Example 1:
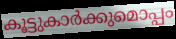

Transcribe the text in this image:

കൂട്ടുകാർക്കുമൊപ്പം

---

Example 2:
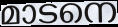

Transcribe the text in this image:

മാടനെ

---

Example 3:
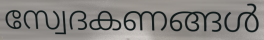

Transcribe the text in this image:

സ്വേദകണങ്ങൾ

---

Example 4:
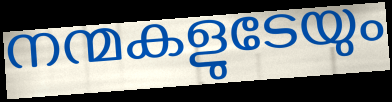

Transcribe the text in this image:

നന്മകളുടേയും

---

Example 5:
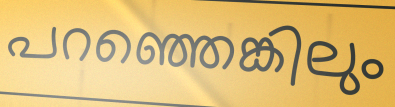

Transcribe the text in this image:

പറഞ്ഞെങ്കിലും